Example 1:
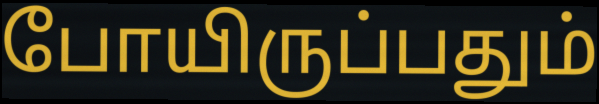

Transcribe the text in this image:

போயிருப்பதும்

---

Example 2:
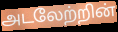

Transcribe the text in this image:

அடலேற்றின்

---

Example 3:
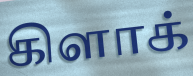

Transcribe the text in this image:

கிளாக்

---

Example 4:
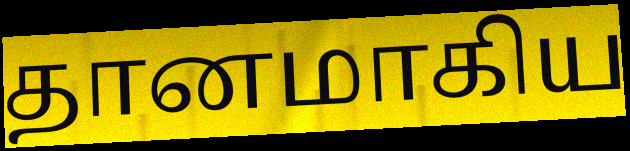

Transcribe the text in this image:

தானமாகிய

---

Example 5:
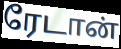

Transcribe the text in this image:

ரேடான்